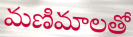
మణిమాలతో